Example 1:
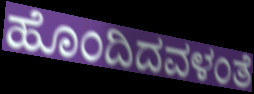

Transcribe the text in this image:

ಹೊಂದಿದವಳಂತೆ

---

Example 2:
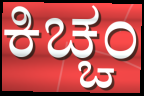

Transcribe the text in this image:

ಕಿಚ್ಚಂ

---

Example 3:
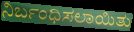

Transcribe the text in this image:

ನಿರ್ಬಂಧಿಸಲಾಯಿತು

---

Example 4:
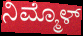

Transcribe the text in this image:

ನಿಮ್ಮೊಳ್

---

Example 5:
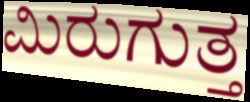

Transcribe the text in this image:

ಮಿರುಗುತ್ತ